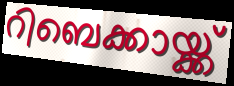
റിബെക്കായ്ക്ക്